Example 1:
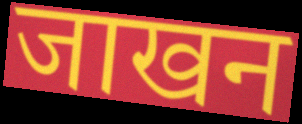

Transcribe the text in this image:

जाखन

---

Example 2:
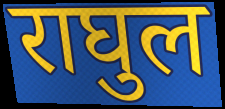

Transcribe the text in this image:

राघुल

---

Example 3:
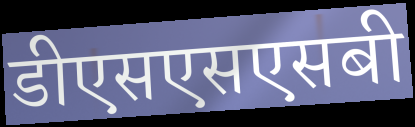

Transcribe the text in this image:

डीएसएसएसबी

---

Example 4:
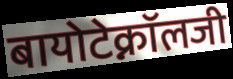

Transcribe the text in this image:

बायोटेक्नॉलजी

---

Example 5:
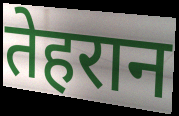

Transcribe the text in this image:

तेहरान